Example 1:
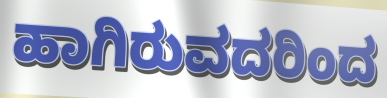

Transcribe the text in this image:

ಹಾಗಿರುವದರಿಂದ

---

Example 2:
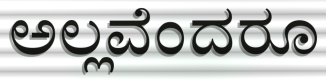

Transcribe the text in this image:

ಅಲ್ಲವೆಂದರೂ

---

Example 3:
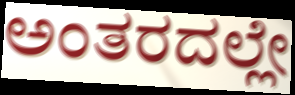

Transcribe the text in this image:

ಅಂತರದಲ್ಲೇ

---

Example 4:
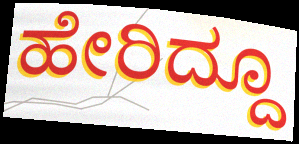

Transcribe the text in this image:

ಹೇರಿದ್ದೂ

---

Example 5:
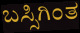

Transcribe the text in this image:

ಬಸ್ಸಿಗಿಂತ